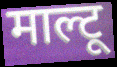
माल्टू